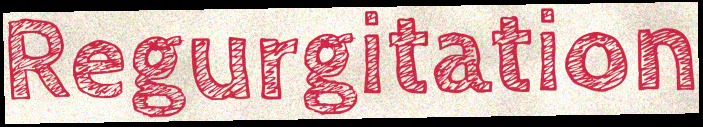
Regurgitation